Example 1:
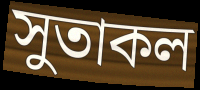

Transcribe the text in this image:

সুতাকল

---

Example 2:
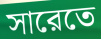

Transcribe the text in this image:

সারেতে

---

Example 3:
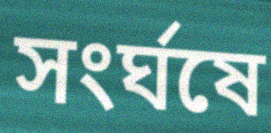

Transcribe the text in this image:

সংর্ঘষে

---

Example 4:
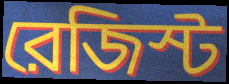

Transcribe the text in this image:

রেজিস্ট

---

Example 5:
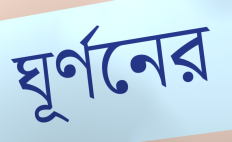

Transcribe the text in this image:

ঘূর্ণনের